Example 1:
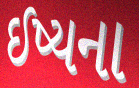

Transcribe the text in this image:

ઈષ્યના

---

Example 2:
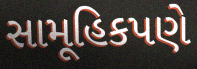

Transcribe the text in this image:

સામૂહિકપણે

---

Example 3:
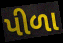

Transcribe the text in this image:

પીળા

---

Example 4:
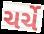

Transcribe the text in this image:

ચર્ચે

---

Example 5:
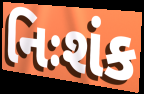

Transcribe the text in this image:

નિઃશંક